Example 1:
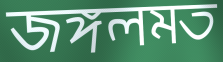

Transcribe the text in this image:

জঙ্গলমত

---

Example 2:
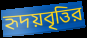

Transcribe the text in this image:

হৃদয়বৃত্তির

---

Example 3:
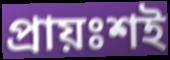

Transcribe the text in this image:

প্রায়ঃশই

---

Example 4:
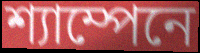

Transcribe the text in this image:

শ্যাম্পেনে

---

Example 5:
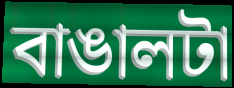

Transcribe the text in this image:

বাঙালটা